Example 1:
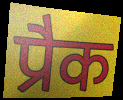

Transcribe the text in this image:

प्रैक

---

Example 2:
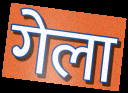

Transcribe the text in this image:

गेला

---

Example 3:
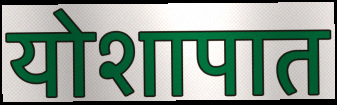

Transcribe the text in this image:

योशापात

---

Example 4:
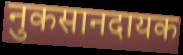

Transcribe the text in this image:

नुकसानदायक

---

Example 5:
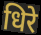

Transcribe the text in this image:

धिरे